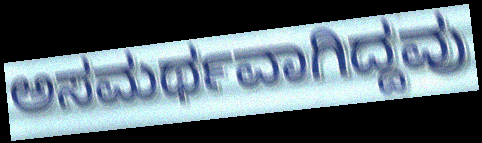
ಅಸಮರ್ಥವಾಗಿದ್ದವು